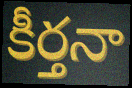
కీర్తనా